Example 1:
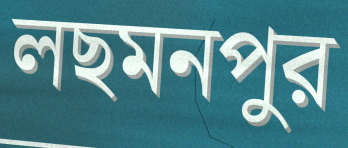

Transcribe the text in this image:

লছমনপুর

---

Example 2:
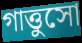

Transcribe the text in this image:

গাত্তুসো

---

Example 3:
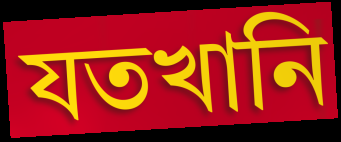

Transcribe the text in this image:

যতখানি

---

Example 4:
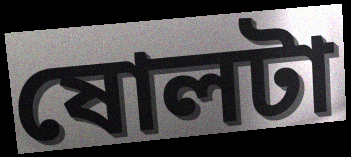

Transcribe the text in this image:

ষোলটা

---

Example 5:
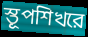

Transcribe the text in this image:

স্তূপশিখরে